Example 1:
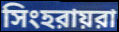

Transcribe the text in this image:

সিংহরায়রা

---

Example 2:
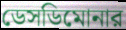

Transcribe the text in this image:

ডেসডিমোনার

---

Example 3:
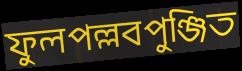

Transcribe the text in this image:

ফুলপল্লবপুঞ্জিত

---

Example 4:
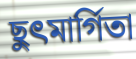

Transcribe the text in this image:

ছুৎমার্গিতা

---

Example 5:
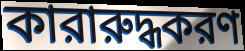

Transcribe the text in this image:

কারারুদ্ধকরণ